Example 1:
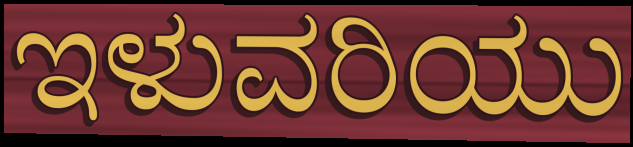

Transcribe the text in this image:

ಇಳುವರಿಯು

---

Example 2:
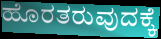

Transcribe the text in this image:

ಹೊರತರುವುದಕ್ಕೆ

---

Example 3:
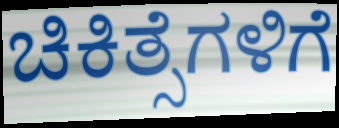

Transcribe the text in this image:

ಚಿಕಿತ್ಸೆಗಳಿಗೆ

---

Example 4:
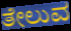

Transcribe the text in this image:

ತೇಲುವ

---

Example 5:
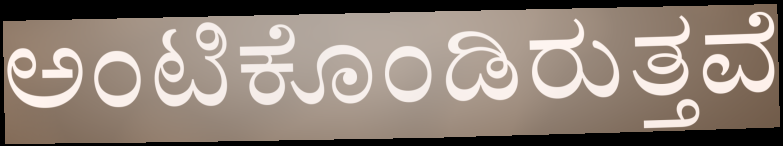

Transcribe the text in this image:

ಅಂಟಿಕೊಂಡಿರುತ್ತವೆ